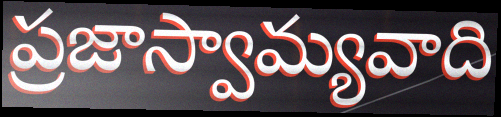
ప్రజాస్వామ్యవాది